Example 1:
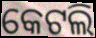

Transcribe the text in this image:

କେଟଲି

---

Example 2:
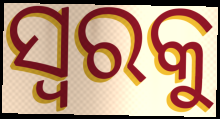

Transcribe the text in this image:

ସ୍ୱରକୁ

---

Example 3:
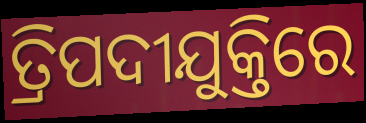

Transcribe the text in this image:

ତ୍ରିପଦୀଯୁକ୍ତିରେ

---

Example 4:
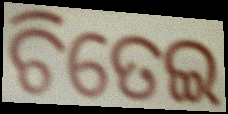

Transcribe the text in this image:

ଚିତେଇ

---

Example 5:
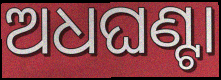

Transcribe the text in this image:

ଅଧଘଣ୍ଟା